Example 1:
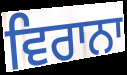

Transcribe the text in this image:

ਵਿਰਾਨਾ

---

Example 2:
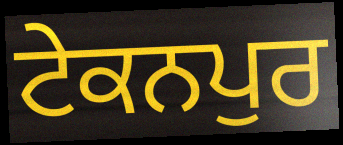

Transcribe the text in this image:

ਟੇਕਨਪੁਰ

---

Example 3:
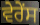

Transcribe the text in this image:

ਵੇਰੇਂਸ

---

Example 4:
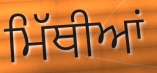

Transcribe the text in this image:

ਮਿੱਥੀਆਂ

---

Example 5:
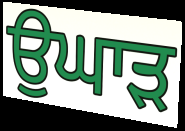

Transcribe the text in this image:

ਉਘਾੜ